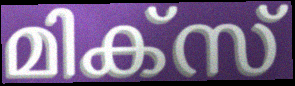
മിക്‌സ്